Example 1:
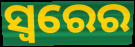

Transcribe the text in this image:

ସ୍ୱରେର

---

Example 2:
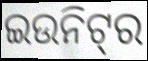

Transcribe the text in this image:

ଇଉନିଟ୍‍ର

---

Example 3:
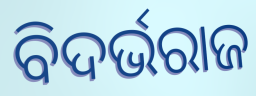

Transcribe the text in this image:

ବିଦର୍ଭରାଜ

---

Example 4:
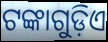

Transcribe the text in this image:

ଟଙ୍କାଗୁଡ଼ିଏ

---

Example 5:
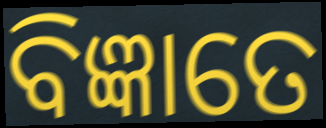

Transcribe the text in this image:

ବିଜ୍ଞାତେ